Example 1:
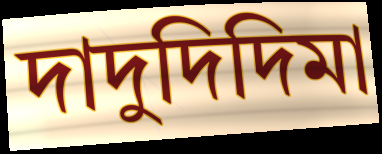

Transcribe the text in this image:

দাদুদিদিমা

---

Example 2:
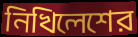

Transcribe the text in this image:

নিখিলেশের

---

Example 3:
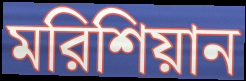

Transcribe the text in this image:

মরিশিয়ান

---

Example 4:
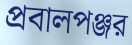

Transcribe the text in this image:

প্রবালপঞ্জর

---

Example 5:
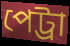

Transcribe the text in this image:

পেট্রা